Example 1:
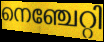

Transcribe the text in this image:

നെഞ്ചേറ്റി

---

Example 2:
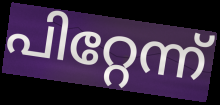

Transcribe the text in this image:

പിറ്റേന്ന്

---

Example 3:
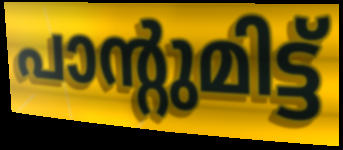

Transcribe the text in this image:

പാന്റുമിട്ട്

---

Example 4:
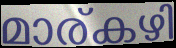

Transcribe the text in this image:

മാര്കഴി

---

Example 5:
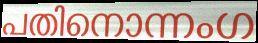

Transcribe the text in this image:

പതിനൊന്നംഗ